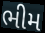
ભીમ